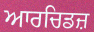
ਆਰਚਿਡਜ਼